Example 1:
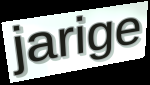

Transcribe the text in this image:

jarige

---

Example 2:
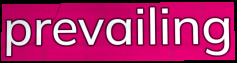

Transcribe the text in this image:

prevailing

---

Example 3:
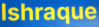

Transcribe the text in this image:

Ishraque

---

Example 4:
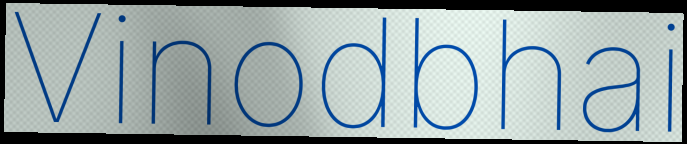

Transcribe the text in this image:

Vinodbhai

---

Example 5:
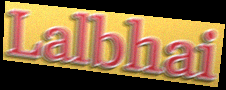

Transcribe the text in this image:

Lalbhai